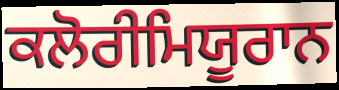
ਕਲੋਰੀਮਿਯੂਰਾਨ